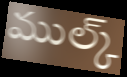
ముల్క్